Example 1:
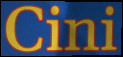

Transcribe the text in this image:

Cini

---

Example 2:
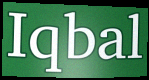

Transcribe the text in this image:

Iqbal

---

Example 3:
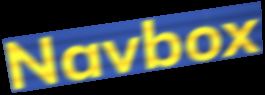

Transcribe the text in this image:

Navbox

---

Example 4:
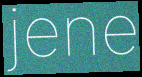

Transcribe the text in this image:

jene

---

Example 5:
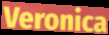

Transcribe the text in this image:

Veronica